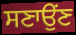
ਸਣਾਉਂਣ